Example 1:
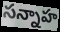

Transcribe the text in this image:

సన్నాహ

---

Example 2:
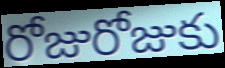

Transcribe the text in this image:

రోజురోజుకు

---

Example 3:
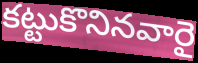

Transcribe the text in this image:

కట్టుకొనినవారై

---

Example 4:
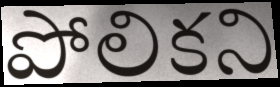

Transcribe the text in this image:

పోలికని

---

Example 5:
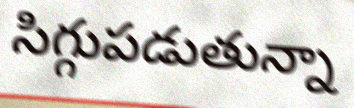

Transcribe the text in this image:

సిగ్గుపడుతున్నా